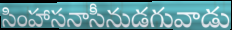
సింహాసనాసీనుడగువాడు